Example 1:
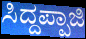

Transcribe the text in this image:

ಸಿದ್ದಪ್ಪಾಜಿ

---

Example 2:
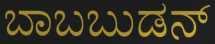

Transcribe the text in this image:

ಬಾಬಬುಡನ್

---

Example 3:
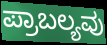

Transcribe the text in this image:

ಪ್ರಾಬಲ್ಯವು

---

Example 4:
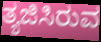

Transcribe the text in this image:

ತ್ಯಜಿಸಿರುವ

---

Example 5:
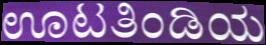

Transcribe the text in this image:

ಊಟತಿಂಡಿಯ